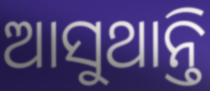
ଆସୁଥାନ୍ତି